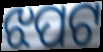
ଝପଟ